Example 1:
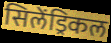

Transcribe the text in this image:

सिलेंड्रिकल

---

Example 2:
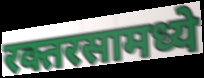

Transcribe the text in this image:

रक्तरसामध्ये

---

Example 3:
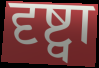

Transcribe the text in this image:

दृष्ट्वा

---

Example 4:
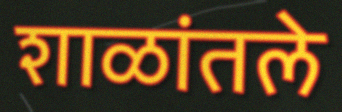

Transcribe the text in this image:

शाळांतले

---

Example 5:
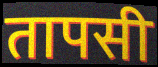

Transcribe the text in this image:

तापसी